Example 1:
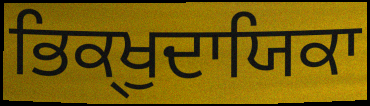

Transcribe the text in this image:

ਭਿਕ੍ਖੁਦਾਯਿਕਾ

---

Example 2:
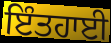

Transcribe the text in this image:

ਇੰਤਹਾਈ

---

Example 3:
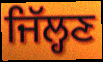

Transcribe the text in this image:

ਜਿੱਲ੍ਹਣ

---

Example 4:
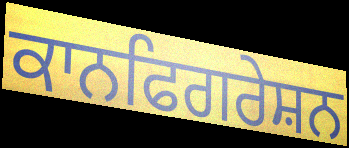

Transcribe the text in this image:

ਕਾਨਫਿਗਰੇਸ਼ਨ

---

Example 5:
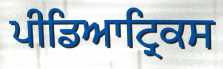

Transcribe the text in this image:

ਪੀਡਿਆਟ੍ਰਿਕਸ